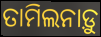
ତାମିଲନାଡ଼ୁ